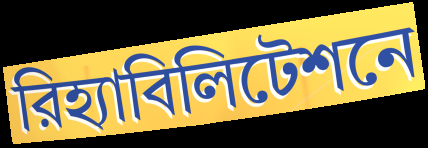
রিহ্যাবিলিটেশনে